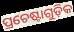
ପ୍ରଚେଷ୍ଟାଗୁଡ଼ିକ